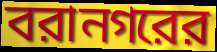
বরানগরের